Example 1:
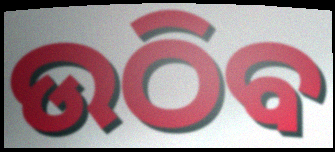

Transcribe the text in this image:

ଉଠିବ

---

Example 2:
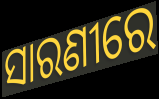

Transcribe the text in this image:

ସାରଣୀରେ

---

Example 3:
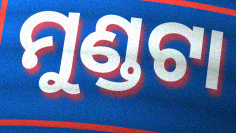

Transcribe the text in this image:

ମୁଣ୍ଡଟା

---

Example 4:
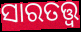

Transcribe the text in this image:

ସାରତତ୍ତ୍ଵ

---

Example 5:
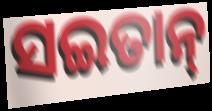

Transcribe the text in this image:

ସଇତାନ୍